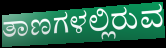
ತಾಣಗಳಲ್ಲಿರುವ